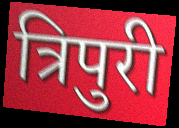
त्रिपुरी